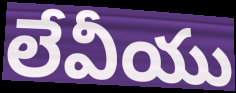
లేవీయు